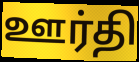
ஊர்தி